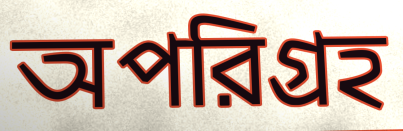
অপরিগ্রহ